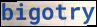
bigotry